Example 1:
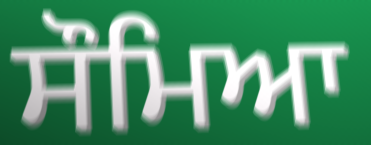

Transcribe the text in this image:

ਸੌਮਿਆ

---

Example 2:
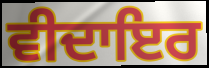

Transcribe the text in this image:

ਵੀਦਾਇਰ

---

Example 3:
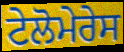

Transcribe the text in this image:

ਟੇਲੋਮੇਰੇਸ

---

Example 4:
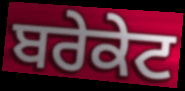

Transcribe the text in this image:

ਬਰੇਕੇਟ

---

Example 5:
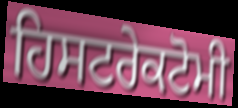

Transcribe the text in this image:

ਹਿਸਟਰੇਕਟੋਮੀ